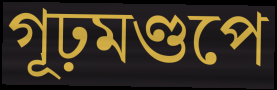
গূঢ়মণ্ডপে